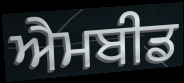
ਐਮਬੀਡ